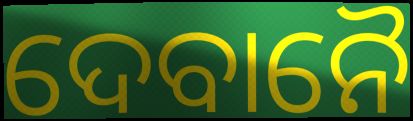
ଦେବାନୈ